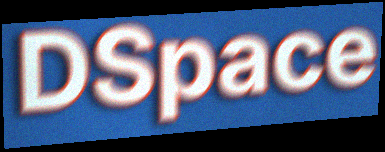
DSpace